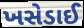
ખસેડાઈ